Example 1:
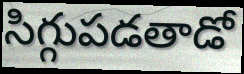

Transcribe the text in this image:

సిగ్గుపడతాడో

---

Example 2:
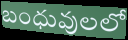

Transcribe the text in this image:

బంధువులలో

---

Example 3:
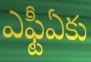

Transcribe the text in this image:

ఎఫ్టీఏకు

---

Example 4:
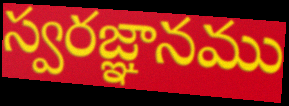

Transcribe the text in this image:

స్వరజ్ఞానము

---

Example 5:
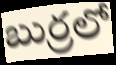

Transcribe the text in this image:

బుర్రలో